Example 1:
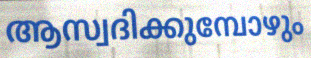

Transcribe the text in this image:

ആസ്വദിക്കുമ്പോഴും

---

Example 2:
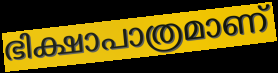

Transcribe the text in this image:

ഭിക്ഷാപാത്രമാണ്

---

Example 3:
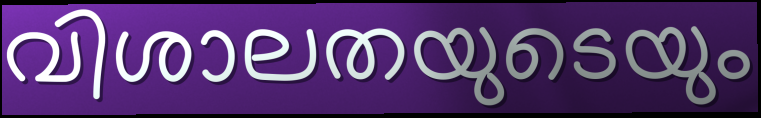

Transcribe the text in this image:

വിശാലതയുടെയും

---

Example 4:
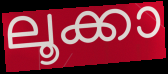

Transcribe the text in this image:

ലൂക്കാ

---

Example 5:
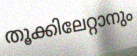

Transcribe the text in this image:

തൂക്കിലേറ്റാനും